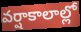
వర్షాకాలాల్లో